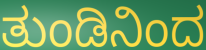
ತುಂಡಿನಿಂದ